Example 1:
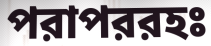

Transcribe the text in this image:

পরাপররহঃ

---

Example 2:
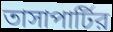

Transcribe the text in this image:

তাসাপার্টির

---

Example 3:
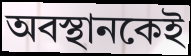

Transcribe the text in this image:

অবস্থানকেই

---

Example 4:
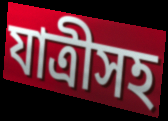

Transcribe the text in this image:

যাত্রীসহ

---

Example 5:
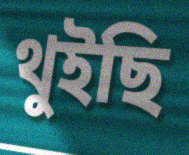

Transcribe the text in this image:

থুইছি